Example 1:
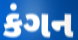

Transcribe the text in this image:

કંગન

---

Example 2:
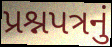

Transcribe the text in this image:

પ્રશ્નપત્રનું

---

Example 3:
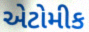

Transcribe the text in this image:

એટોમીક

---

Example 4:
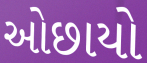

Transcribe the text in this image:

ઓછાયો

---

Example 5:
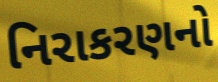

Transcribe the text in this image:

નિરાકરણનો